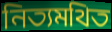
নিত্যমথিত